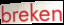
breken